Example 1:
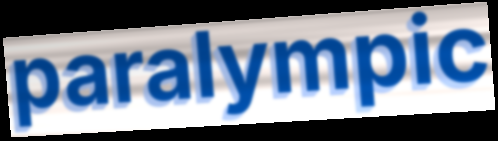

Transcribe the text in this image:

paralympic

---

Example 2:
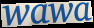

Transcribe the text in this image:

wawa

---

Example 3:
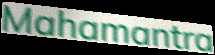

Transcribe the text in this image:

Mahamantra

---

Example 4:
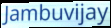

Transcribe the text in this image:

Jambuvijay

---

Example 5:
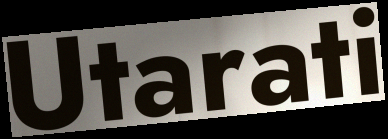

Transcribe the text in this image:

Utarati